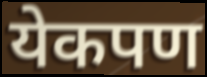
येकपण